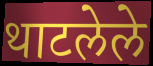
थाटलेले